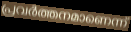
പ്രവർത്തനമാണെന്ന്